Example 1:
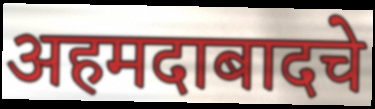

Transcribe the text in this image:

अहमदाबादचे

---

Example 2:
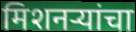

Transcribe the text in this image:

मिशनऱ्यांचा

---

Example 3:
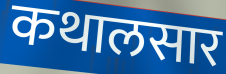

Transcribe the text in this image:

कथालसार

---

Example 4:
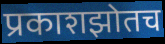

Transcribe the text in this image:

प्रकाशझोतच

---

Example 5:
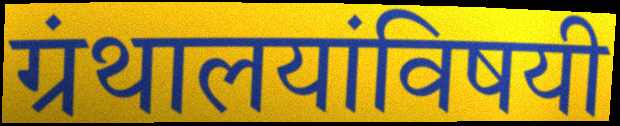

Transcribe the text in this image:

ग्रंथालयांविषयी